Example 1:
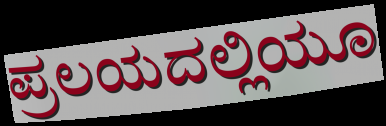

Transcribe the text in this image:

ಪ್ರಲಯದಲ್ಲಿಯೂ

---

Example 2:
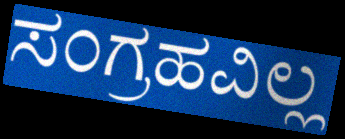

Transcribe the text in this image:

ಸಂಗ್ರಹವಿಲ್ಲ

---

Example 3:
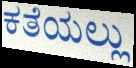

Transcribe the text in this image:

ಕತೆಯಲ್ಲು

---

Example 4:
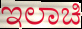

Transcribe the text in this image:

ಇಲಾಚಿ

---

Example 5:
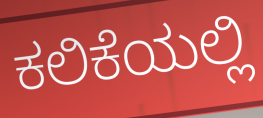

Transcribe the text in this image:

ಕಲಿಕೆಯಲ್ಲಿ